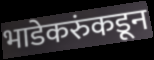
भाडेकरुंकडून